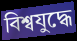
বিশ্বযুদ্ধে